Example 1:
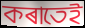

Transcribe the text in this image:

কৰাতেই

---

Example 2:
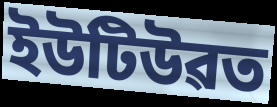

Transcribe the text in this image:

ইউটিউৱত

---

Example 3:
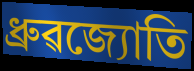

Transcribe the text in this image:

ধ্ৰুৱজ্যোতি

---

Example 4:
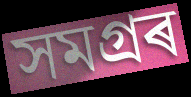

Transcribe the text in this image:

সমগ্ৰৰ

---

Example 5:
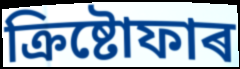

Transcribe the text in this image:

ক্ৰিষ্টোফাৰ